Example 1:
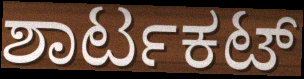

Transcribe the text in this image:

ಶಾರ್ಟಕಟ್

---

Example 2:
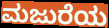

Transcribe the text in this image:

ಮಜುರೆಯ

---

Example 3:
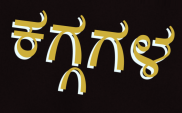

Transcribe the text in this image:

ಕಗ್ಗಗಳ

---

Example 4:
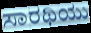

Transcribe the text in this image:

ಸಾರಥಿಯು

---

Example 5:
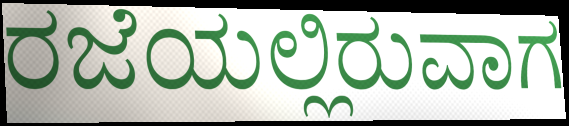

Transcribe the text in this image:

ರಜೆಯಲ್ಲಿರುವಾಗ